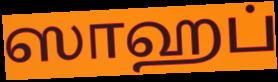
ஸாஹப்